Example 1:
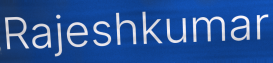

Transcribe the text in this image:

Rajeshkumar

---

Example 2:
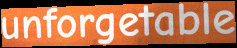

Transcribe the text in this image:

unforgetable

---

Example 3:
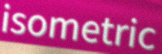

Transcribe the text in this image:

isometric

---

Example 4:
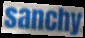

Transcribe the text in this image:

sanchy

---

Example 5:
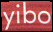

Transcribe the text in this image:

yibo